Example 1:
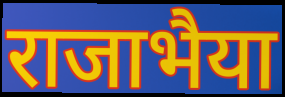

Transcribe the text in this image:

राजाभैया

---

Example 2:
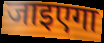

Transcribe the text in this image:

जाइएगा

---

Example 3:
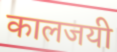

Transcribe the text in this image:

कालजयी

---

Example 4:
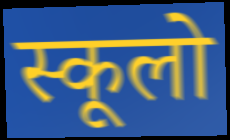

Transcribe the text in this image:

स्कूलो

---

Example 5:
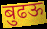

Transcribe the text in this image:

बुढऊ